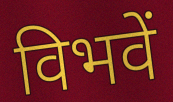
विभवें